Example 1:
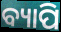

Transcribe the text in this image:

ବ୍ୟାପି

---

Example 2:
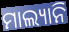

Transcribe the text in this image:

ମାଲ୍ୟାନି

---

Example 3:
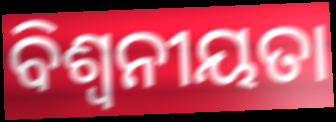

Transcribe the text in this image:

ବିଶ୍ୱନୀୟତା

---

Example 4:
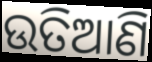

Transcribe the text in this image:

ଉତିଆଣି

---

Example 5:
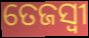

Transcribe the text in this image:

ତେଜସ୍ବୀ